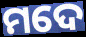
ମଦେ